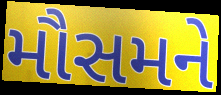
મૌસમને